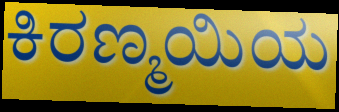
ಕಿರಣ್ಮಯಿಯ